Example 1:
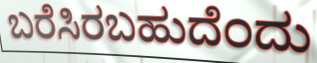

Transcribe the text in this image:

ಬರೆಸಿರಬಹುದೆಂದು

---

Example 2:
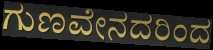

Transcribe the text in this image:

ಗುಣವೇನದರಿಂದ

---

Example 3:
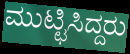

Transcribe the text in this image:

ಮುಟ್ಟಿಸಿದ್ದರು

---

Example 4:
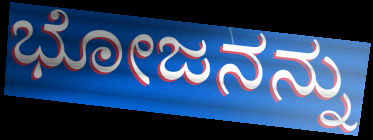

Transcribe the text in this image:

ಭೋಜನನ್ನು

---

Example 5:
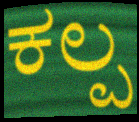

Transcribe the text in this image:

ಕಲ್ಪ